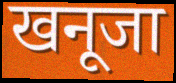
खनूजा